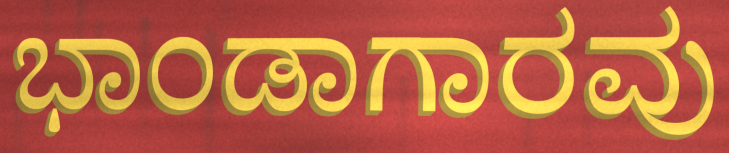
ಭಾಂಡಾಗಾರವು